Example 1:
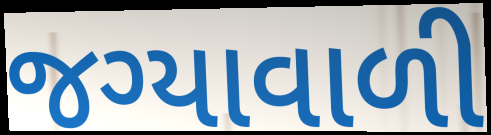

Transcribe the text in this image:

જગ્યાવાળી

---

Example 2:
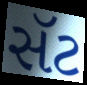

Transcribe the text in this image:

સૅટ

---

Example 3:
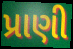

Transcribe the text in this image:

પ્રાણી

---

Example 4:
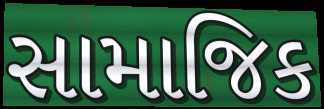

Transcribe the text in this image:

સામાજિક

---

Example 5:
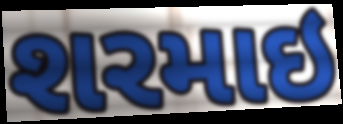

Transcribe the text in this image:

શરમાઇ